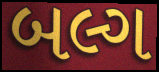
બલ્ગ